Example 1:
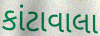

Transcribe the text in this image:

કાંટાવાલા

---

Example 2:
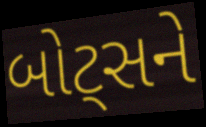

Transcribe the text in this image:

બોટ્સને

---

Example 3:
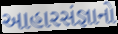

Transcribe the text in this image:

આહારસંજ્ઞાનો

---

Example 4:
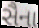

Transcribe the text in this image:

સૈના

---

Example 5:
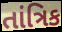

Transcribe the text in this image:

તાંત્રિક